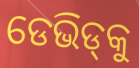
ଡେଭିଡ୍‍କୁ